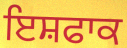
ਇਸ਼ਫਾਕ